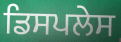
ਡਿਸਪਲੇਸ